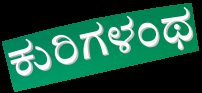
ಕುರಿಗಳಂಥ